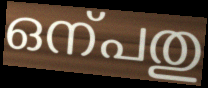
ഒന്പതു